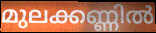
മുലക്കണ്ണിൽ